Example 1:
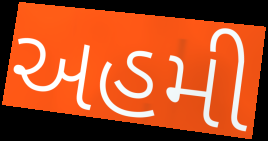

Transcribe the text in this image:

અહમી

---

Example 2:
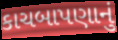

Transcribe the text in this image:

કાચબાપણાનું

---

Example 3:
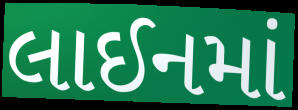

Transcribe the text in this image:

લાઈનમાં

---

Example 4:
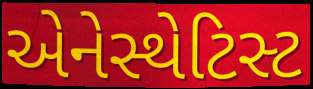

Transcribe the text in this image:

એનેસ્થેટિસ્ટ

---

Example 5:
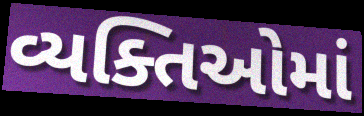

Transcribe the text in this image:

વ્યક્તિઓમાં